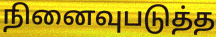
நினைவுபடுத்த